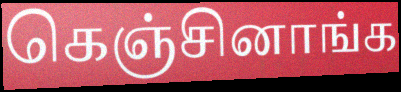
கெஞ்சினாங்க